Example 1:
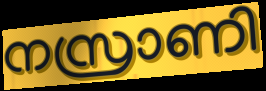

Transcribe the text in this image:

നസ്രാണി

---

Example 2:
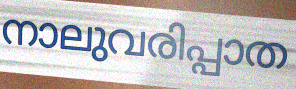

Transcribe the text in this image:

നാലുവരിപ്പാത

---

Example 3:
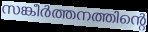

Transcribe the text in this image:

സങ്കീർത്തനത്തിന്റെ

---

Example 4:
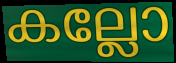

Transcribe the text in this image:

കല്ലോ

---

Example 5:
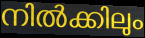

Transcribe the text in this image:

നിൽക്കിലും